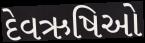
દેવઋષિઓ